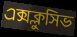
এক্সক্লুসিভ